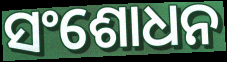
ସଂଶୋଧନ